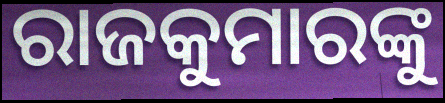
ରାଜକୁମାରଙ୍କୁ